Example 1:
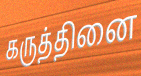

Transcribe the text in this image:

கருத்தினை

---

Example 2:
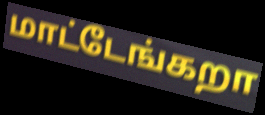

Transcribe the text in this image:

மாட்டேங்கறா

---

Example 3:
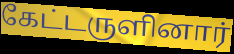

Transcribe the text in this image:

கேட்டருளினார்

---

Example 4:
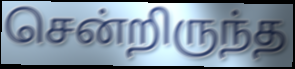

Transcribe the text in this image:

சென்றிருந்த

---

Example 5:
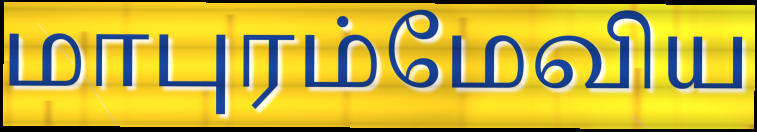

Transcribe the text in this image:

மாபுரம்மேவிய